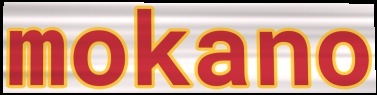
mokano